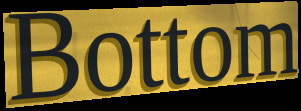
Bottom